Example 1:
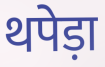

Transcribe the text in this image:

थपेड़ा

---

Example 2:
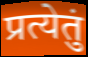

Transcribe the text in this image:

प्रत्येतुं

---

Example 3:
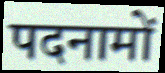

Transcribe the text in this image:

पदनामों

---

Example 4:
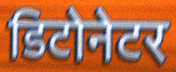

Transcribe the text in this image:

डिटोनेटर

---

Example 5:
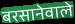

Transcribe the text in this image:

बरसानेवाले